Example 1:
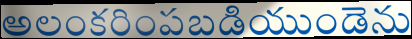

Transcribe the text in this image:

అలంకరింపబడియుండెను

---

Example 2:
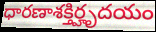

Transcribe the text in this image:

ధారణాశక్తిర్హృదయం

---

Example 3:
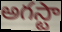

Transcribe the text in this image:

అగస్టా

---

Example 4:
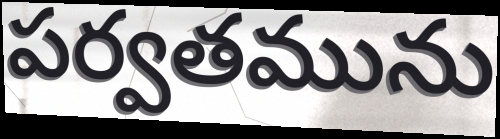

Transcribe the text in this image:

పర్వతమును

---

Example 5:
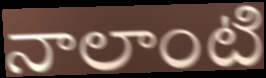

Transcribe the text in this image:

నాలాంటి